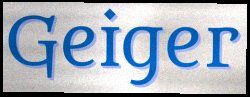
Geiger